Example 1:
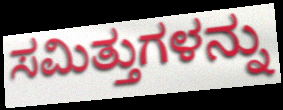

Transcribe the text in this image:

ಸಮಿತ್ತುಗಳನ್ನು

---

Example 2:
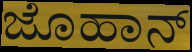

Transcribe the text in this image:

ಜೊಹಾನ್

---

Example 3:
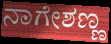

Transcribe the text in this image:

ನಾಗೇಶಣ್ಣ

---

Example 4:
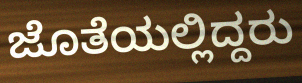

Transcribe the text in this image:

ಜೊತೆಯಲ್ಲಿದ್ದರು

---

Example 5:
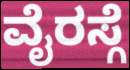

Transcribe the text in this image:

ವೈರಸ್ಗೆ